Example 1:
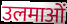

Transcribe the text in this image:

उलमाओं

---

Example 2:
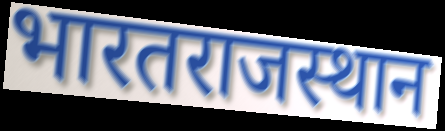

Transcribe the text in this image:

भारतराजस्थान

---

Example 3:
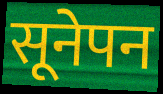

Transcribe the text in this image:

सूनेपन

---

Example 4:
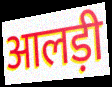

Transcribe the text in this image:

आलड़ी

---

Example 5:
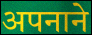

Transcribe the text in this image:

अपनाने